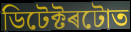
ডিটেক্টৰটোত